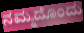
ನಮ್ಮದೊಂದು